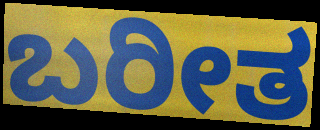
ಬರೀತ